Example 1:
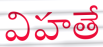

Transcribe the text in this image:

విహతే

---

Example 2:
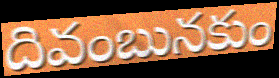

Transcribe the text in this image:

దివంబునకుం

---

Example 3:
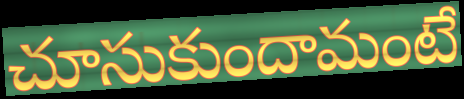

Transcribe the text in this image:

చూసుకుందామంటే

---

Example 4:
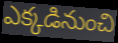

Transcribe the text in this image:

ఎక్కడినుంచి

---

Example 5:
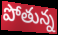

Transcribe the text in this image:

పోతున్న